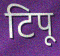
टिपू